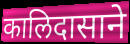
कालिदासाने